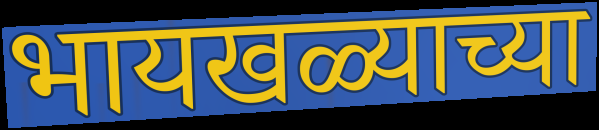
भायखळ्याच्या